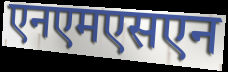
एनएमएसएन